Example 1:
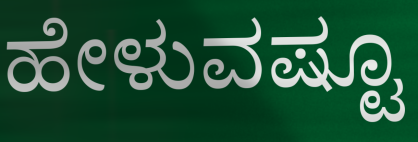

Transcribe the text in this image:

ಹೇಳುವಷ್ಟೂ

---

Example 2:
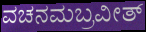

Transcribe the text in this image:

ವಚನಮಬ್ರವೀತ್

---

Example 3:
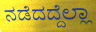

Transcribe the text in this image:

ನಡೆದದ್ದೆಲ್ಲಾ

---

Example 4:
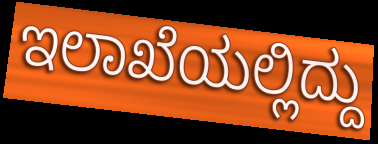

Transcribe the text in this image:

ಇಲಾಖೆಯಲ್ಲಿದ್ದು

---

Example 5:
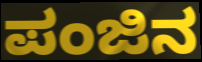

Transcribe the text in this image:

ಪಂಜಿನ